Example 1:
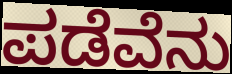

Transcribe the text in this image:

ಪಡೆವೆನು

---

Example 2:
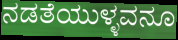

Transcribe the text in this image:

ನಡತೆಯುಳ್ಳವನೂ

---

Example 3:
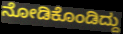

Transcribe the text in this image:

ನೋಡಿಕೊಂಡಿದ್ದು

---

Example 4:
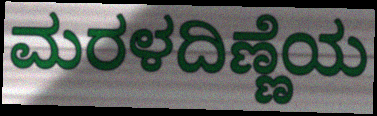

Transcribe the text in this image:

ಮರಳದಿಣ್ಣೆಯ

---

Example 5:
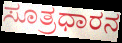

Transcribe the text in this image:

ಸೂತ್ರಧಾರನ